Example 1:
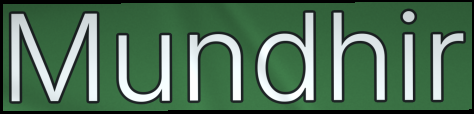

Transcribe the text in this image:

Mundhir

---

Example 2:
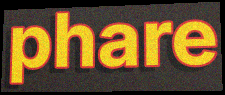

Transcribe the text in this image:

phare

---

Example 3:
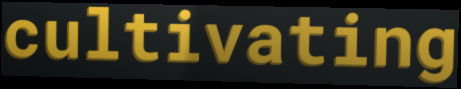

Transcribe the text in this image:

cultivating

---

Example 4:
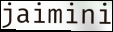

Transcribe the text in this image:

jaimini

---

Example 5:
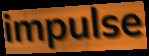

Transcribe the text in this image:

impulse